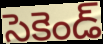
సెకెండ్